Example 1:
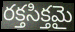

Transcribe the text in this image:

రక్తసిక్తమై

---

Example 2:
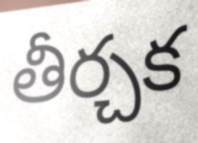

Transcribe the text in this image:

తీర్చక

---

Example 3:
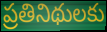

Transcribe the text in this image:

ప్రతినిథులకు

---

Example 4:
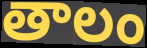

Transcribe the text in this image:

తాలం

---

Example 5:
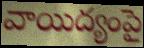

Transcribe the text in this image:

వాయిద్యంపై